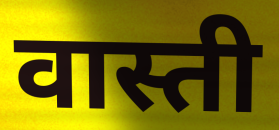
वास्ती